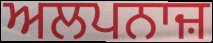
ਅਲਪਨਾਜ਼